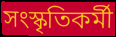
সংস্কৃতিকর্মী